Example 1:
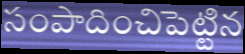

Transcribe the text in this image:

సంపాదించిపెట్టిన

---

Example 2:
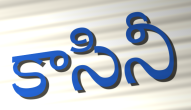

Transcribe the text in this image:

కాసినీ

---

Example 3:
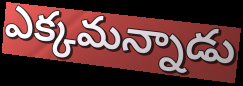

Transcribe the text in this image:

ఎక్కమన్నాడు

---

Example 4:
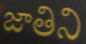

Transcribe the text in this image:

జాతిని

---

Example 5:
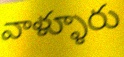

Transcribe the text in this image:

వాళ్ళూరు